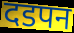
दडपन